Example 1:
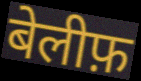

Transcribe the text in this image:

बेलीफ़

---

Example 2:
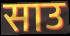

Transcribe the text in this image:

साउ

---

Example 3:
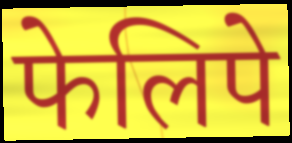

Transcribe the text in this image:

फेलिपे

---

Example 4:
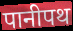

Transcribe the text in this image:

पानीपथ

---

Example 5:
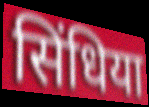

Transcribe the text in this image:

सिंधिया